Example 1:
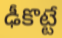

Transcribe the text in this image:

ఢీకొట్టే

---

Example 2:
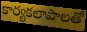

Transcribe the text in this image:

కార్యకలాపాలతో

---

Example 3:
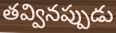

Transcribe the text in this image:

తవ్వినప్పుడు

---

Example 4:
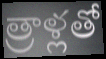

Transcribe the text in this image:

త్రాళ్లతో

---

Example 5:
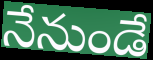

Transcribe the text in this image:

నేనుండే